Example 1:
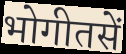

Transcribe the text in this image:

भोगीतसें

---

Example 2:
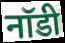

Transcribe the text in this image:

नॉडी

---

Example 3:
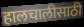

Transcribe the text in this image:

हालचालीसाठी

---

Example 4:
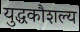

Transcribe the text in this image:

युद्धकौशल्य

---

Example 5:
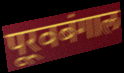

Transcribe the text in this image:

पूर्वबंगाल